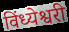
विंध्येश्वरी